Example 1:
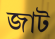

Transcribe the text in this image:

জাট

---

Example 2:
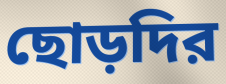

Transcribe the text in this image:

ছোড়দির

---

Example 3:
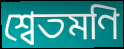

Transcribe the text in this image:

শ্বেতমণি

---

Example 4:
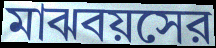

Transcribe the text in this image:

মাঝবয়সের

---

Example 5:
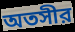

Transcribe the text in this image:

অতসীর